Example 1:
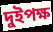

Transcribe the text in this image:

দুইপক্ষ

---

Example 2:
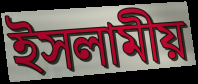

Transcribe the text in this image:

ইসলামীয়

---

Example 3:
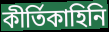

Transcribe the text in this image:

কীর্তিকাহিনি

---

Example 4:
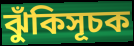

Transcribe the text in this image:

ঝুঁকিসূচক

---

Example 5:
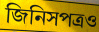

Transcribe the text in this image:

জিনিসপত্রও